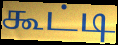
கூட்டி